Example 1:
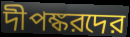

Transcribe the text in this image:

দীপঙ্করদের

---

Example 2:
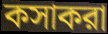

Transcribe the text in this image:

কসাকরা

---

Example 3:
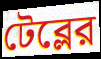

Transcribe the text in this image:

টেব্লের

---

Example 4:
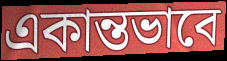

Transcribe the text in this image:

একান্তভাবে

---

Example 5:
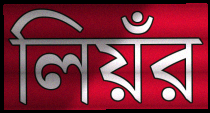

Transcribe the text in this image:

লিয়ঁর